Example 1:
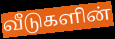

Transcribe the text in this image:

வீடுகளின்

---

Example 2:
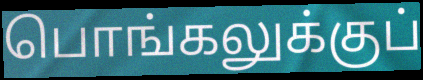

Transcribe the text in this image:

பொங்கலுக்குப்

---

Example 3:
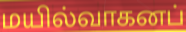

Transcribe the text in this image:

மயில்வாகனப்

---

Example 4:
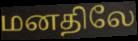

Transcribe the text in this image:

மனதிலே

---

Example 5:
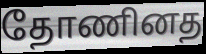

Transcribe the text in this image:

தோணினத